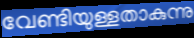
വേണ്ടിയുള്ളതാകുന്നു